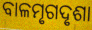
ବାଳମୃଗଦୃଶା